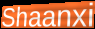
Shaanxi